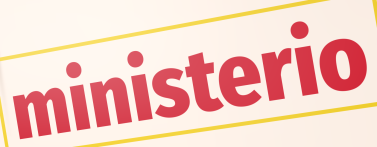
ministerio